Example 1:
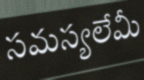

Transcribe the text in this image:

సమస్యలేమీ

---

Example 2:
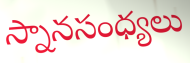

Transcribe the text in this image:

స్నానసంధ్యలు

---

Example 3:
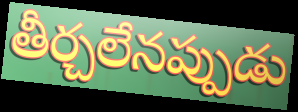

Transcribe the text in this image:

తీర్చలేనప్పుడు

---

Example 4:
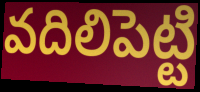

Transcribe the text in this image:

వదిలిపెట్టి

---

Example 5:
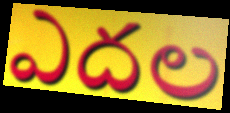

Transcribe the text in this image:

ఎదల